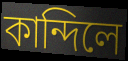
কান্দিলে